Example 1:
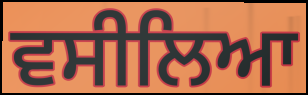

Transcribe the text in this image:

ਵਸੀਲਿਆ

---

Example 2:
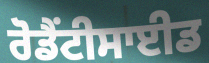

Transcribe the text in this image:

ਰੋਡੈਂਟੀਸਾਈਡ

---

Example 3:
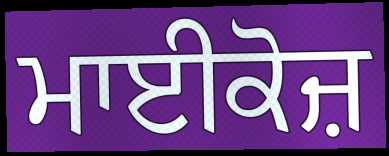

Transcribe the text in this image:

ਮਾਈਕੋਜ਼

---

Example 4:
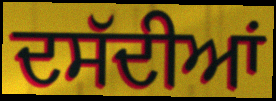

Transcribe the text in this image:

ਦਸੱਦੀਆਂ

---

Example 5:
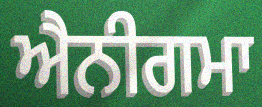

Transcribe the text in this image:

ਐਨੀਗਮਾ